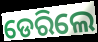
ଡେରିଲେ